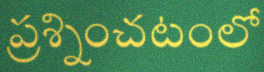
ప్రశ్నించటంలో